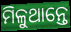
ମିଳୁଥାନ୍ତେ